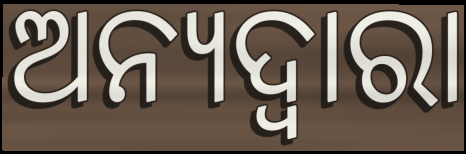
ଅନ୍ୟଦ୍ଵାରା